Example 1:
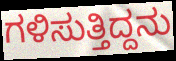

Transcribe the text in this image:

ಗಳಿಸುತ್ತಿದ್ದನು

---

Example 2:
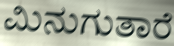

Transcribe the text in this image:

ಮಿನುಗುತಾರೆ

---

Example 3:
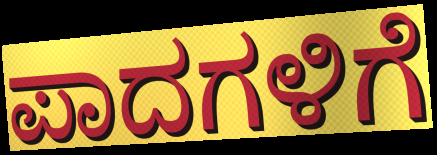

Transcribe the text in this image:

ಪಾದಗಳಿಗೆ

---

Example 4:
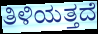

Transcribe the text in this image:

ತಿಳಿಯತ್ತದೆ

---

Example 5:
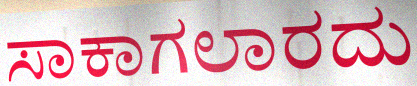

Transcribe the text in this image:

ಸಾಕಾಗಲಾರದು